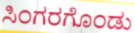
ಸಿಂಗರಗೊಂಡು